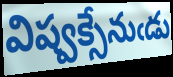
విష్వక్సేనుఁడు